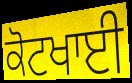
ਕੋਟਖਾਈ